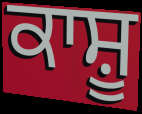
ਕਾਸ਼ੂ